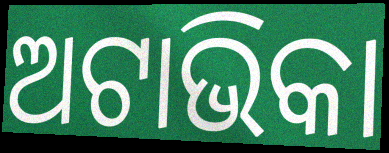
ଅଟାଭିକା